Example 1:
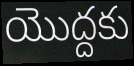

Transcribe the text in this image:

యొద్దకు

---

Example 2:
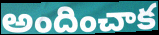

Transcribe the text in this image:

అందించాక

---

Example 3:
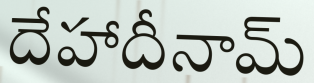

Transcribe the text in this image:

దేహాదీనామ్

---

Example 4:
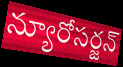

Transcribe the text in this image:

న్యూరోసర్జన్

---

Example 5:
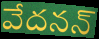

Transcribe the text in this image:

వేదనన్